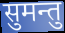
सुमन्तु